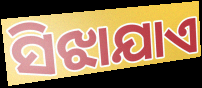
ସିଝାଯାଏ